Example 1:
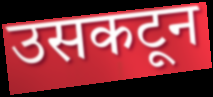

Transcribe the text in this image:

उसकटून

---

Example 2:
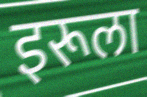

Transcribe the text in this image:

इरूला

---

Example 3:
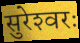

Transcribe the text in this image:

सुरेश्वरः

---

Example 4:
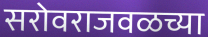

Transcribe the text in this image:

सरोवराजवळच्या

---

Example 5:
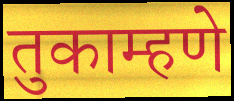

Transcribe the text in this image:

तुकाम्हणे